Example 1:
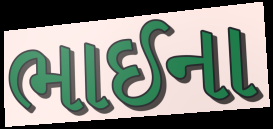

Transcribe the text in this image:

ભાઈના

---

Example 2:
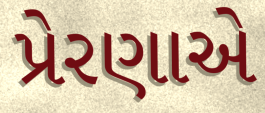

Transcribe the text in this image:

પ્રેરણાએ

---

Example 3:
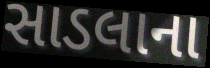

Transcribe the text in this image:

સાડલાના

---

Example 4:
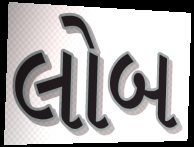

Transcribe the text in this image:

લોબ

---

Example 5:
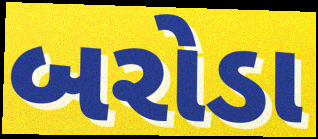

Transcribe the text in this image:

બરોડા